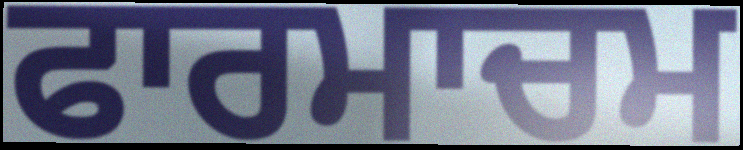
ਫਾਰਮਾਚਮ